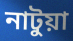
নাটুয়া